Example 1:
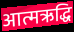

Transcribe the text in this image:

आत्मऋद्धि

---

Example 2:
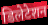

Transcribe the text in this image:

डिलेटेशन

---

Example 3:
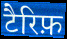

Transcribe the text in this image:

टैरिफ़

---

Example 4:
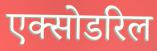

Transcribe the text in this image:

एक्सोडरिल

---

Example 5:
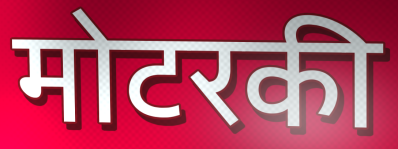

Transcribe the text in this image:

मोटरकी